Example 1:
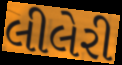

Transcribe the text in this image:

લીલેરી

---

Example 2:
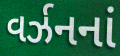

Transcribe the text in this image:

વર્ઝનનાં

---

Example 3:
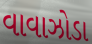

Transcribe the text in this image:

વાવાઝોડા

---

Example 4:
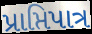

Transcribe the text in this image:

પ્રાપ્તિપાત્ર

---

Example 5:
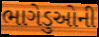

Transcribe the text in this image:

ભાગેડુઓની